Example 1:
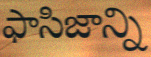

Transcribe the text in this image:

ఫాసిజాన్ని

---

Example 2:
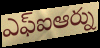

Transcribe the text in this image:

ఎఫ్ఐఆర్ను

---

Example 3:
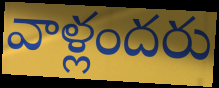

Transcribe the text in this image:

వాళ్లందరు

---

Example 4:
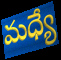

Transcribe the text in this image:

మధ్యే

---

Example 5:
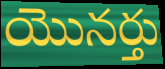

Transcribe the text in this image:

యొనర్తు